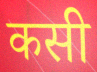
कसी